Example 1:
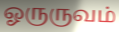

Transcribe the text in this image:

ஓருருவம்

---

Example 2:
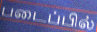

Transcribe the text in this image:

படைப்பில்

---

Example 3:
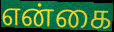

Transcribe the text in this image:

என்கை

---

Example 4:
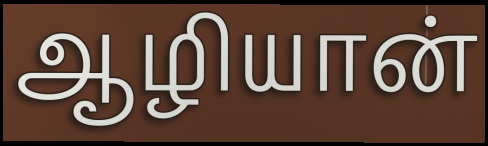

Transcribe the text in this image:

ஆழியான்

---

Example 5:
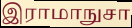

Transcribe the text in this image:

இராமாநுசா